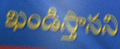
ఖండిస్తానని